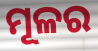
ମୂଳର